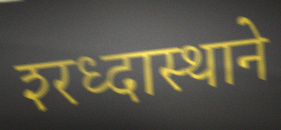
श्रध्दास्थाने